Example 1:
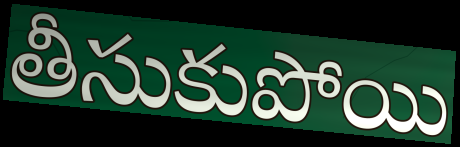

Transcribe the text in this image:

తీసుకుపోయి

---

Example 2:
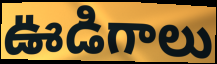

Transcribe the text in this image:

ఊడిగాలు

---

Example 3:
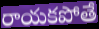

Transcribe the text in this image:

రాయకపోతే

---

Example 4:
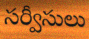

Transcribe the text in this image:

సర్వీసులు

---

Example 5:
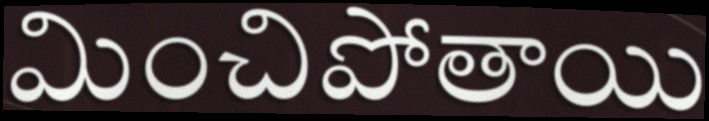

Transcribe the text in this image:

మించిపోతాయి